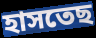
হাসতেছ